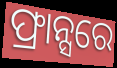
ଫ୍ରାନ୍ସରେ